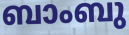
ബാംബു